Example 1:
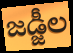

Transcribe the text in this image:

జడ్జీల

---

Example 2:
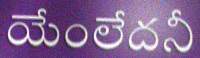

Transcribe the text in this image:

యేంలేదనీ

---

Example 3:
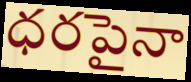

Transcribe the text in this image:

ధరపైనా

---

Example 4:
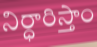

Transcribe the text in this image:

నిర్ధారిస్తాం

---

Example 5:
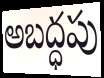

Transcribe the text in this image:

అబద్ధపు